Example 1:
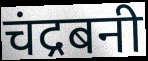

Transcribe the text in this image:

चंद्रबनी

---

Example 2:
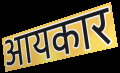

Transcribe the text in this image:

आयकार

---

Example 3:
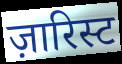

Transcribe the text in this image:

ज़ारिस्ट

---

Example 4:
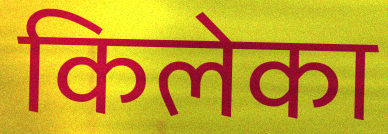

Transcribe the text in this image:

किलेका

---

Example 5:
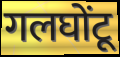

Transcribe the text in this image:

गलघोंटू